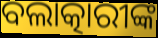
ବଲାତ୍କାରୀଙ୍କ